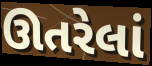
ઊતરેલાં